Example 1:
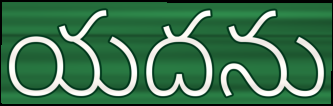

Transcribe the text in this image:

యదను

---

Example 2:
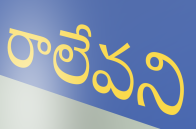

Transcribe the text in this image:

రాలేవని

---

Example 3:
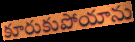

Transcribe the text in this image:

కూరుకుపోయాను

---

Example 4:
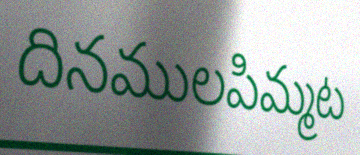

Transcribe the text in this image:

దినములపిమ్మట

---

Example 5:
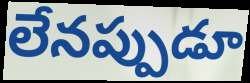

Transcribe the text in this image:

లేనప్పుడూ